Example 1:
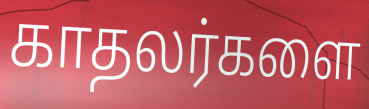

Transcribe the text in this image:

காதலர்களை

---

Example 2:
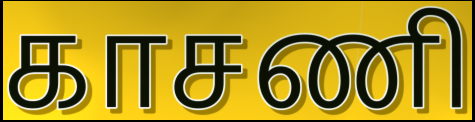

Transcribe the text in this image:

காசணி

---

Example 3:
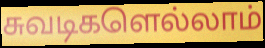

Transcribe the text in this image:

சுவடிகளெல்லாம்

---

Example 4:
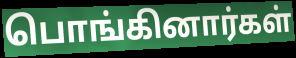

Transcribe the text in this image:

பொங்கினார்கள்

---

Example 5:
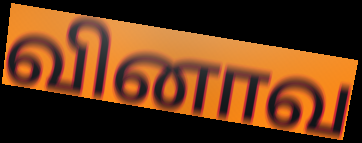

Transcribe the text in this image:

வினாவ